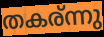
തകര്ന്നു